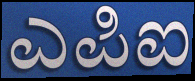
ಎಪಿಐ